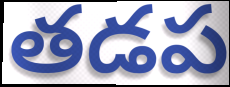
తడప